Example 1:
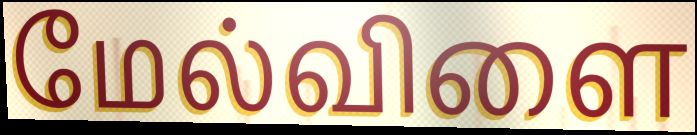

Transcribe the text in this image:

மேல்விளை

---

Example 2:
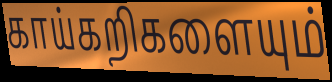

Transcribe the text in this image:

காய்கறிகளையும்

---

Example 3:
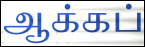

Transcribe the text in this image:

ஆக்கப்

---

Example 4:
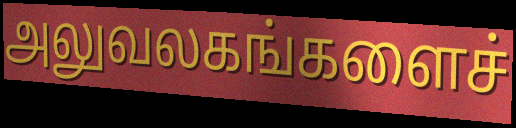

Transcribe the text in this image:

அலுவலகங்களைச்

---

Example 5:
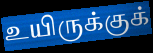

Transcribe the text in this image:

உயிருக்குக்